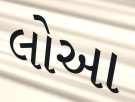
લોઆ